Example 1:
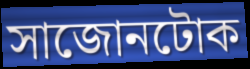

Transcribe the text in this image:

সাজোনটোক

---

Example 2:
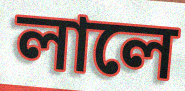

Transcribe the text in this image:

লালে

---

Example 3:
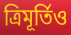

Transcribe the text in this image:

ত্ৰিমূৰ্তিও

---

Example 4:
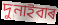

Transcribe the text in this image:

দুনাইবাৰ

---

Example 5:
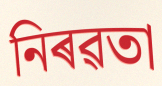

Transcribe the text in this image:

নিৰৱতা